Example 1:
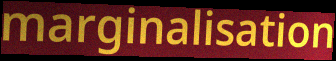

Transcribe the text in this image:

marginalisation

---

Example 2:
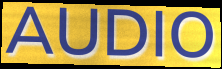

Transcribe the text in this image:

AUDIO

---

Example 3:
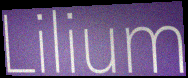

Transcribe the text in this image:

Lilium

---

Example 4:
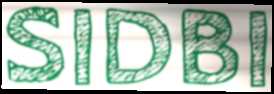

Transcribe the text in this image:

SIDBI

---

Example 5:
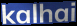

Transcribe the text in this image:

kalhai